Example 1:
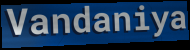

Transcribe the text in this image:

Vandaniya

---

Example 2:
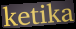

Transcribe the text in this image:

ketika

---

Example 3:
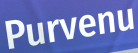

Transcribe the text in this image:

Purvenu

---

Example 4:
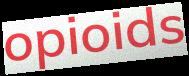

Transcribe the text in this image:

opioids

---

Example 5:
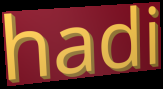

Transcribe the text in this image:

hadi